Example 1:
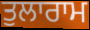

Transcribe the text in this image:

ਤੁਲਾਰਾਮ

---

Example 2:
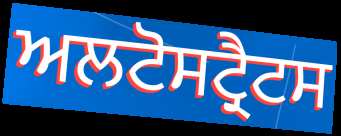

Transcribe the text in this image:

ਅਲਟੋਸਟ੍ਰੈਟਸ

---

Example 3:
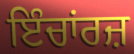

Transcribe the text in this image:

ਇੰਚਾਂਰਜ਼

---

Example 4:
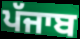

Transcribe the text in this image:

ਪੱਜਾਬ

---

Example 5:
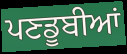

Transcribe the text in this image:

ਪਣਡੂਬੀਆਂ